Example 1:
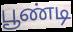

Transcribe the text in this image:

பூண்டி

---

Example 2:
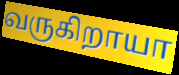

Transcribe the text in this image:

வருகிறாயா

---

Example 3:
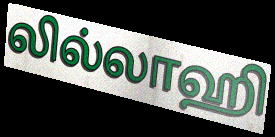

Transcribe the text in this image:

லில்லாஹி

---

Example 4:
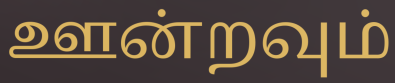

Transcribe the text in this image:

ஊன்றவும்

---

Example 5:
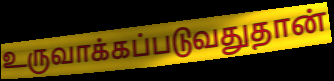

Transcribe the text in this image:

உருவாக்கப்படுவதுதான்